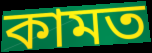
কামত